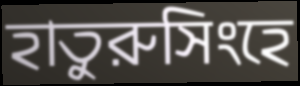
হাতুরুসিংহে